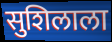
सुशिलाला